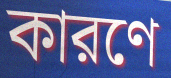
কারণে